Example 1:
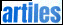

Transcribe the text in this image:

artiles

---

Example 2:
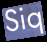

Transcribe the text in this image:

Siq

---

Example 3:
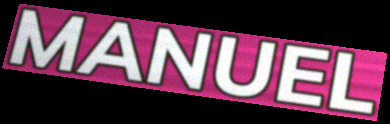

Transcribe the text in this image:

MANUEL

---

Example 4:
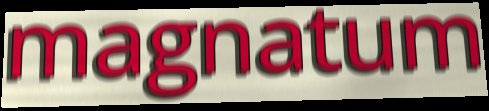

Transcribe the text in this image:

magnatum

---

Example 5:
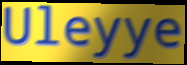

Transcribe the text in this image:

Uleyye